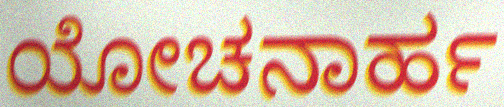
ಯೋಚನಾರ್ಹ